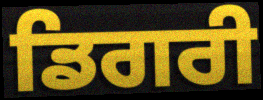
ਡਿਗਰੀ